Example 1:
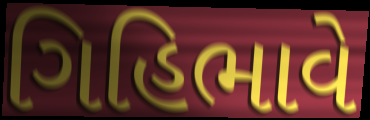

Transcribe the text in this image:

ગિહિભાવે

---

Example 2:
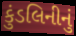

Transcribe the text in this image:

કુંડલિનીનું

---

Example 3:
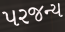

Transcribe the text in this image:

પરજન્ય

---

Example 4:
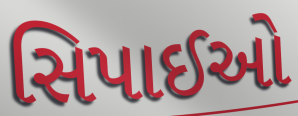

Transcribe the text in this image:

સિપાઈઓ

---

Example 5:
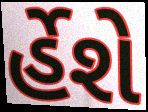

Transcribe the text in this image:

ર્હેશે